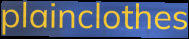
plainclothes